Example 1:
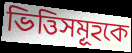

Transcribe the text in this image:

ভিত্তিসমূহকে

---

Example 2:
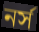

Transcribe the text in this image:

নর্স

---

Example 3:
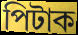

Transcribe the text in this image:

পিটাক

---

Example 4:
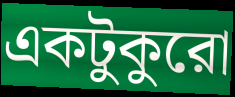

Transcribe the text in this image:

একটুকুরো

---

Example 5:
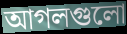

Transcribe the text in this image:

আগলগুলো